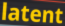
latent